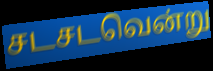
சடசடவென்று